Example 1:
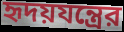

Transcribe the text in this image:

হৃদয়যন্ত্রের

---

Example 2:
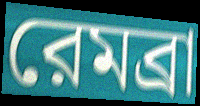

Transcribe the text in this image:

রেমব্রা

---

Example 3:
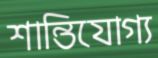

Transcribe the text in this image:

শান্তিযোগ্য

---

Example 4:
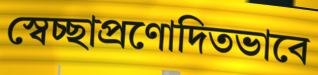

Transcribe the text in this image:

স্বেচ্ছাপ্রণোদিতভাবে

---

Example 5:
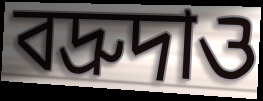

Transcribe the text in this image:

বদ্রুদাও